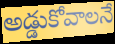
అడ్డుకోవాలనే